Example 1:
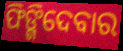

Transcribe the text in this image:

ଫିଙ୍ଗିଦେବାର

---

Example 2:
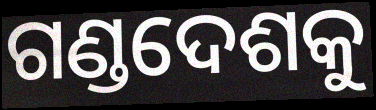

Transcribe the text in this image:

ଗଣ୍ଡଦେଶକୁ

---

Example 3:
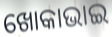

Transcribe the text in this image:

ଖୋକାଭାଇ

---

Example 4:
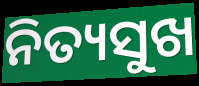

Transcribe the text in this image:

ନିତ୍ୟସୁଖ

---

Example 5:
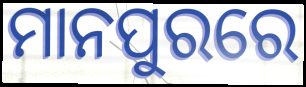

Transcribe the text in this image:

ମାନପୁରରେ